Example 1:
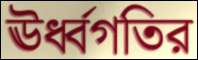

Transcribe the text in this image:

ঊর্ধ্বগতির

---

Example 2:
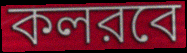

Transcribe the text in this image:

কলরবে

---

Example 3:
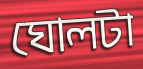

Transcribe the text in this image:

ঘোলটা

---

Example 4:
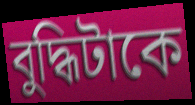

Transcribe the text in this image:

বুদ্ধিটাকে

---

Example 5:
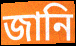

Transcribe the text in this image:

জানি